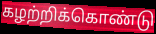
கழற்றிக்கொண்டு